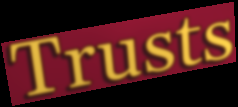
Trusts